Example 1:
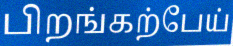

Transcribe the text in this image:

பிறங்கற்பேய்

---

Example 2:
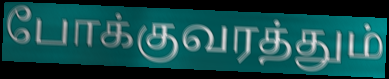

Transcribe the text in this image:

போக்குவரத்தும்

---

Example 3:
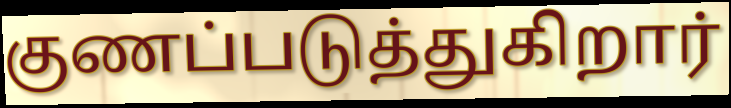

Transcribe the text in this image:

குணப்படுத்துகிறார்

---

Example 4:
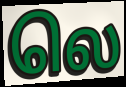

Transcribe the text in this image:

லெ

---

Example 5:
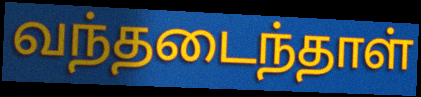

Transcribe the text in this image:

வந்தடைந்தாள்